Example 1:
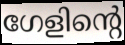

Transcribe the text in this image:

ഗേളിന്റെ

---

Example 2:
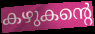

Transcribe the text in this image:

കഴുകന്റെ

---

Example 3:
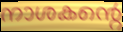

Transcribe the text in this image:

നാശകന്റെ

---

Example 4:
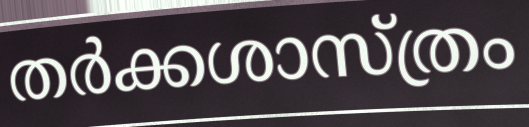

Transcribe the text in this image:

തർക്കശാസ്ത്രം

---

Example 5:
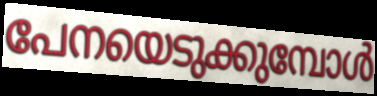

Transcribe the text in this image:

പേനയെടുക്കുമ്പോൾ